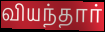
வியந்தார்